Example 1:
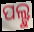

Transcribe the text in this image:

ପଲ୍ଟୁ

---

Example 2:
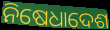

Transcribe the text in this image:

ନିଷେଧାଦେଶ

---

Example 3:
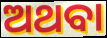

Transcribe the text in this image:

ଅଥବା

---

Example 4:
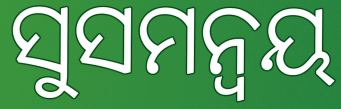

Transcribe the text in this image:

ସୁସମନ୍ଵୟ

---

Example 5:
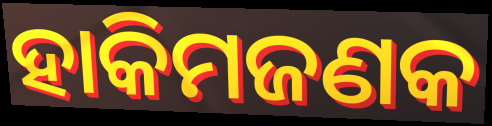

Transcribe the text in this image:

ହାକିମଜଣକ